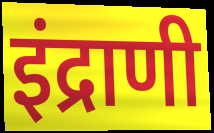
इंद्राणी